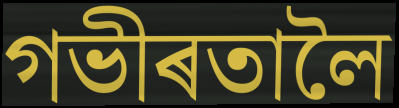
গভীৰতালৈ